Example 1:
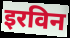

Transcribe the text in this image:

इरविन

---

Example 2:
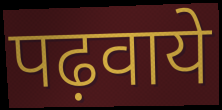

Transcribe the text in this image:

पढ़वाये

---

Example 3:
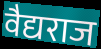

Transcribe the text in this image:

वैद्यराज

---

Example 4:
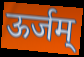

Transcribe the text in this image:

ऊर्जम्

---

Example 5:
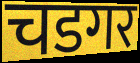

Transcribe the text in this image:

चडगर